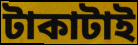
টাকাটাই